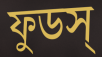
ফুডস্